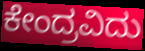
ಕೇಂದ್ರವಿದು